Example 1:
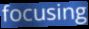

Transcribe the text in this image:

focusing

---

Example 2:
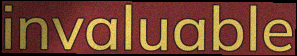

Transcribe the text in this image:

invaluable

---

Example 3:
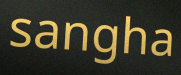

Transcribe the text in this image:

sangha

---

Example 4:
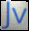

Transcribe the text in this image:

Jv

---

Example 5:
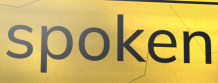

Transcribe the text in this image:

spoken